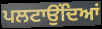
ਪਲਟਾਉਂਦਿਆਂ